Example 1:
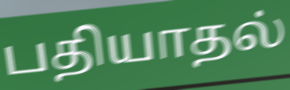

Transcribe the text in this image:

பதியாதல்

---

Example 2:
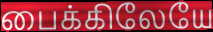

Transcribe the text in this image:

பைக்கிலேயே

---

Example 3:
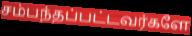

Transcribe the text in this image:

சம்பந்தப்பட்டவர்களே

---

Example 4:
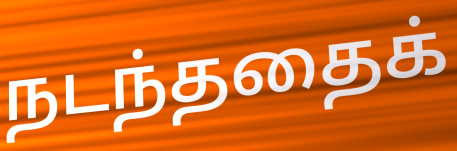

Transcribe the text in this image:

நடந்ததைக்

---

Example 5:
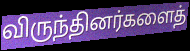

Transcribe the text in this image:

விருந்தினர்களைத்